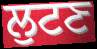
ਲੁਟਣ